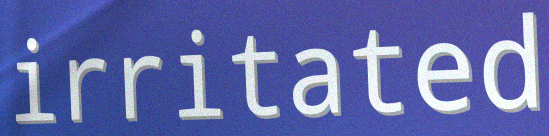
irritated